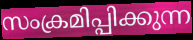
സംക്രമിപ്പിക്കുന്ന